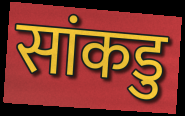
सांकडु